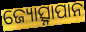
ଜ୍ୟୋତ୍ସ୍ନାପାନ